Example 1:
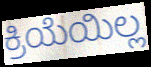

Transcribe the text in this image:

ಕ್ರಿಯೆಯಿಲ್ಲ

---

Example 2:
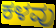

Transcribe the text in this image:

ಕಳವು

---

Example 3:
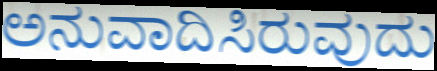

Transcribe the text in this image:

ಅನುವಾದಿಸಿರುವುದು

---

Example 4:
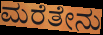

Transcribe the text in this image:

ಮರೆತೇನು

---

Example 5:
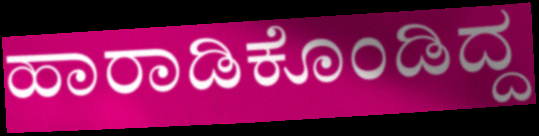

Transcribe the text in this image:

ಹಾರಾಡಿಕೊಂಡಿದ್ದ